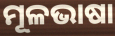
ମୂଳଭାଷା